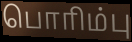
பொரிம்பு